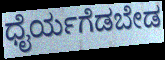
ಧೈರ್ಯಗೆಡಬೇಡ